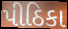
પીઠિકા